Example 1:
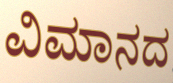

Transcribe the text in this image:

ವಿಮಾನದ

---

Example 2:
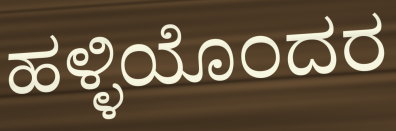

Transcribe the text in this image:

ಹಳ್ಳಿಯೊಂದರ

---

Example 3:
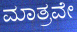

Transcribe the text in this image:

ಮಾತ್ರವೇ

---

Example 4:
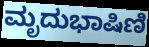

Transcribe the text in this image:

ಮೃದುಭಾಷಿಣಿ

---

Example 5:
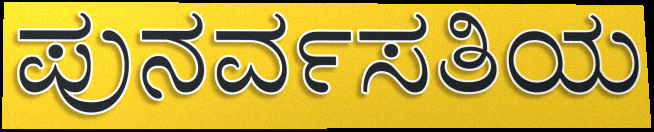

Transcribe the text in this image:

ಪುನರ್ವಸತಿಯ